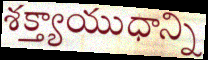
శక్త్యాయుధాన్ని